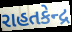
રાહતકેન્દ્ર